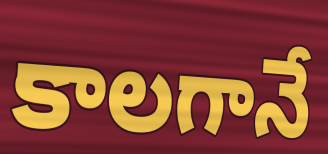
కాలగానే